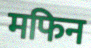
मफिन